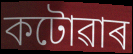
কটোৱাৰ